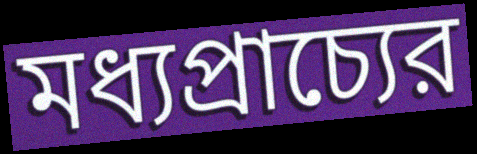
মধ্যপ্রাচ্যের